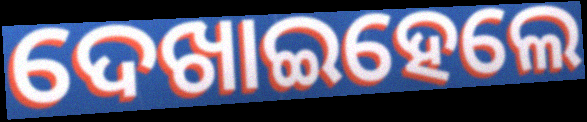
ଦେଖାଇହେଲେ